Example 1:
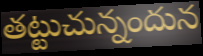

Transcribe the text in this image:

తట్టుచున్నందున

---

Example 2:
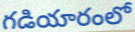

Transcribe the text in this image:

గడియారంలో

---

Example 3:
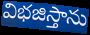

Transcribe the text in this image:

విభజిస్తాను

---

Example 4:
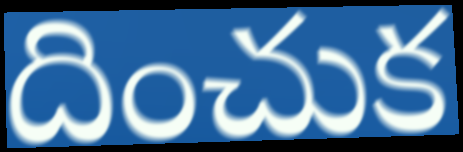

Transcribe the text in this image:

దించుక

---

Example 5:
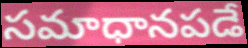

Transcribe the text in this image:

సమాధానపడే